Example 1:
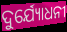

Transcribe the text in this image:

ଦୁର୍ଯ୍ୟୋଧନୀ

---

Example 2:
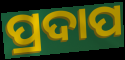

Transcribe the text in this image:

ପ୍ରଦାପ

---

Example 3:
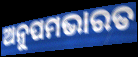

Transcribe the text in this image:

ଅନୁପମଭାରତ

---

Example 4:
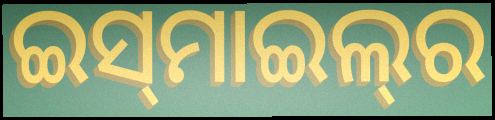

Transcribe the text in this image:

ଇସ୍‌ମାଇଲ୍‌ର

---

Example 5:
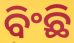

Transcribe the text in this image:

ବିଂଛି